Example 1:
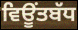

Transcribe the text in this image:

ਵਿਊਂਤਬੱਧ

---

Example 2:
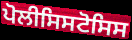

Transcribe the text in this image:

ਪੋਲੀਸਿਸਟੋਸਿਸ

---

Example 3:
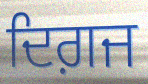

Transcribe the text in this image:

ਦਿਗ਼ਜ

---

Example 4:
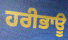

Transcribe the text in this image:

ਹਰੀਭਾਊ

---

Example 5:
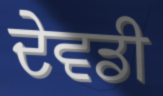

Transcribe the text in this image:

ਦੇਵਡੀ